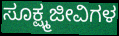
ಸೂಕ್ಷ್ಮಜೀವಿಗಳ